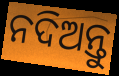
ନଦିଅନ୍ତୁ